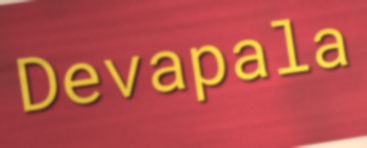
Devapala